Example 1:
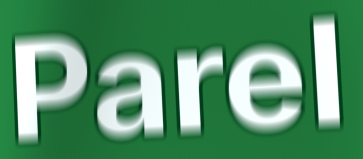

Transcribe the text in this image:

Parel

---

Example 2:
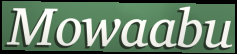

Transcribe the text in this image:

Mowaabu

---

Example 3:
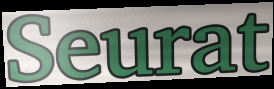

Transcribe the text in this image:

Seurat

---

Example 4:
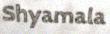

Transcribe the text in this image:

Shyamala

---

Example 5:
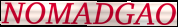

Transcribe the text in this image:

NOMADGAO